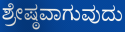
ಶ್ರೇಷ್ಠವಾಗುವುದು